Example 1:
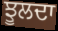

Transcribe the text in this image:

ਝੂਲਦਾ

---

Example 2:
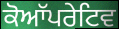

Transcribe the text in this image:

ਕੋਆੱਪਰੇਟਿਵ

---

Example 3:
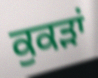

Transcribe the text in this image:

ਕੁਕੜਾਂ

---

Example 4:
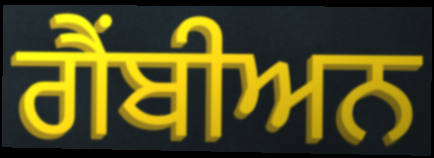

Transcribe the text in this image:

ਗੈਂਬੀਅਨ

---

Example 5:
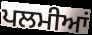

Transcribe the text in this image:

ਪਲਮੀਆਂ